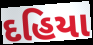
દહિયા